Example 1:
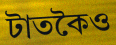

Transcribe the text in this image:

টাতকৈও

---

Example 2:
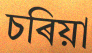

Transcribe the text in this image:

চৰিয়া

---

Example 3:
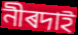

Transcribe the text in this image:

নীৰদাই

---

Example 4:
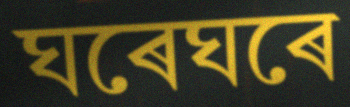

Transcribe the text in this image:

ঘৰেঘৰে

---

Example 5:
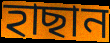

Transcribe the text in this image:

হাছান